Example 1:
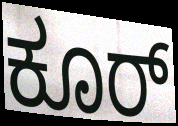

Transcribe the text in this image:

ಕೂರ್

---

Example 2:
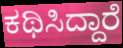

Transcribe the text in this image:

ಕಥಿಸಿದ್ದಾರೆ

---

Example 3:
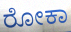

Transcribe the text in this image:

ರೋಕಾ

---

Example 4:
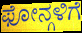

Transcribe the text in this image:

ಫೋನ್ಗಳಿಗೆ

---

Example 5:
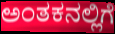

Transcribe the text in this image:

ಅಂತಕನಲ್ಲಿಗೆ